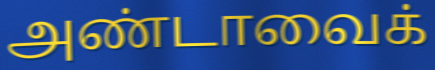
அண்டாவைக்